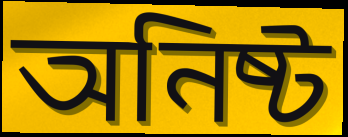
অনিষ্ট